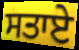
ਸਤਾਏ